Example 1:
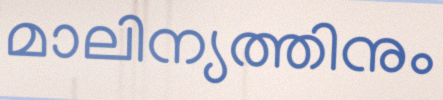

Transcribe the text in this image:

മാലിന്യത്തിനും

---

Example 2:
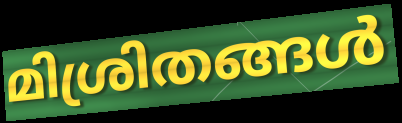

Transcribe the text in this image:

മിശ്രിതങ്ങൾ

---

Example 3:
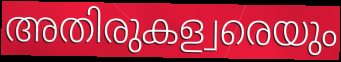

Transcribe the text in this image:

അതിരുകള്വരെയും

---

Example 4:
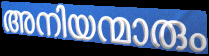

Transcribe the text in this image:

അനിയന്മാരും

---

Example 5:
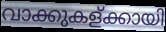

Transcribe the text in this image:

വാക്കുകള്ക്കായി